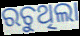
ରଚୁଥିଲା